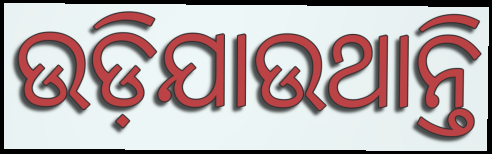
ଉଡ଼ିଯାଉଥାନ୍ତି